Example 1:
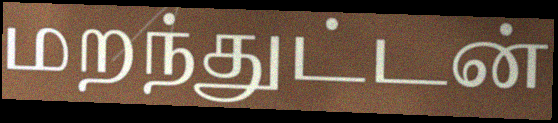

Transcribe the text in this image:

மறந்துட்டன்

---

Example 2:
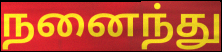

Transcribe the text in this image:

நனைந்து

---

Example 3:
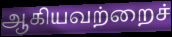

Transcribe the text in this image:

ஆகியவற்றைச்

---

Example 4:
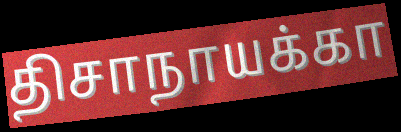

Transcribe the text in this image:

திசாநாயக்கா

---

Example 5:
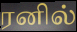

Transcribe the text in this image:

ரனில்